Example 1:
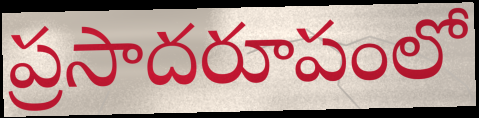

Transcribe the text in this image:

ప్రసాదరూపంలో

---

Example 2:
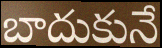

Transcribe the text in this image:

బాదుకునే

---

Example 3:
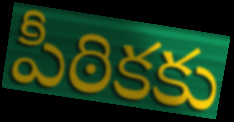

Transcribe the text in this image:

పీఠికకు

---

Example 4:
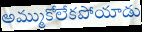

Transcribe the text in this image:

అమ్ముకోలేకపోయాడు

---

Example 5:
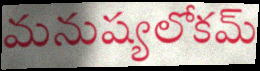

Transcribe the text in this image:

మనుష్యలోకమ్